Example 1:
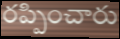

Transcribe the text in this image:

రప్పించారు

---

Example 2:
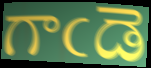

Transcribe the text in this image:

గాఁడె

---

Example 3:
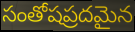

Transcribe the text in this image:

సంతోషప్రదమైన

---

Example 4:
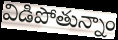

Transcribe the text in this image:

విడిపోతున్నాం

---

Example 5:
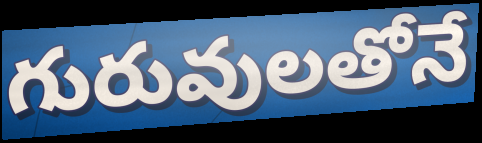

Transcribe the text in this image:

గురువులతోనే